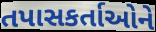
તપાસકર્તાઓને